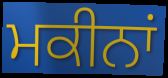
ਮਕੀਨਾਂ